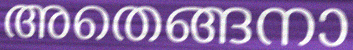
അതെങ്ങനാ